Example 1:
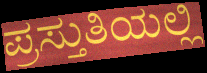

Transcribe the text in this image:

ಪ್ರಸ್ತುತಿಯಲ್ಲಿ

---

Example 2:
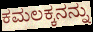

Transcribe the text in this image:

ಕಮಲಕ್ಕನನ್ನು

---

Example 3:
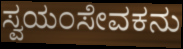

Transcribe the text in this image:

ಸ್ವಯಂಸೇವಕನು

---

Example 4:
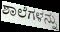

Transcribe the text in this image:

ಶಾಲೆಗಳನ್ನು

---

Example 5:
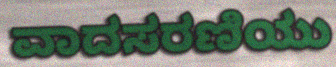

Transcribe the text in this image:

ವಾದಸರಣಿಯು